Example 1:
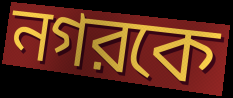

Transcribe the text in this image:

নগরকে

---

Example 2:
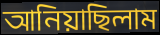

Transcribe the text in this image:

আনিয়াছিলাম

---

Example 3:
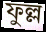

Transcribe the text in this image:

ফুল্ল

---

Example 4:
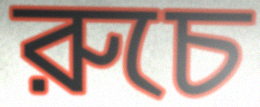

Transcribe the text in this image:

রুচে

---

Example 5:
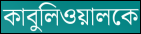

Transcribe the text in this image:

কাবুলিওয়ালকে